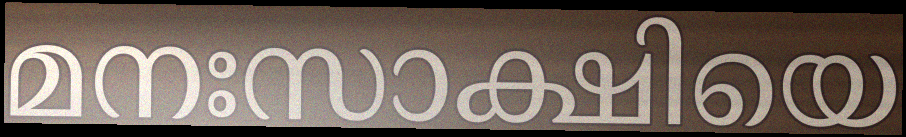
മനഃസാക്ഷിയെ